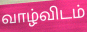
வாழ்விடம்